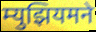
म्युझियमने